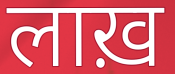
लाख़